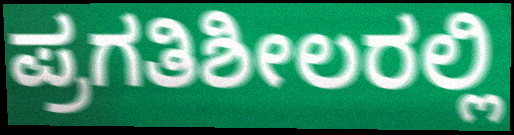
ಪ್ರಗತಿಶೀಲರಲ್ಲಿ